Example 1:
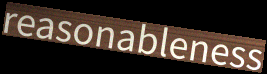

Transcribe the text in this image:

reasonableness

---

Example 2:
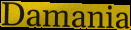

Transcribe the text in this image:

Damania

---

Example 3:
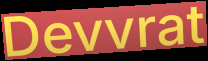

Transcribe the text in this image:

Devvrat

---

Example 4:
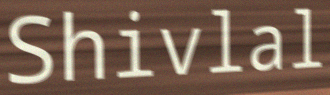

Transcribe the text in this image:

Shivlal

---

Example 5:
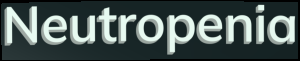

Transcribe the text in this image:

Neutropenia